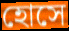
হোসে